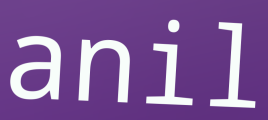
anil